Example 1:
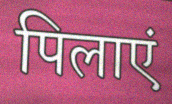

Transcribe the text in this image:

पिलाएं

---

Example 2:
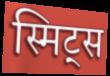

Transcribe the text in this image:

स्मिट्स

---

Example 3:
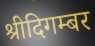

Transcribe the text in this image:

श्रीदिगम्बर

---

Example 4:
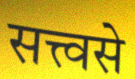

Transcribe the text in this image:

सत्त्वसे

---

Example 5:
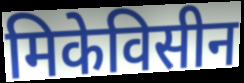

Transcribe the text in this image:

मिकेविसीन